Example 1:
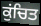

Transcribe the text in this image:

ਕੁਂਚਿਤ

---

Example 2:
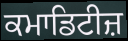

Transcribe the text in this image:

ਕਮਾਡਿਟੀਜ਼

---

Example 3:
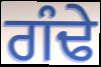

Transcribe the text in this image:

ਗੰਢੇ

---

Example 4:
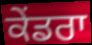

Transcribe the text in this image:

ਕੇਂਡਰਾ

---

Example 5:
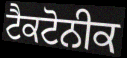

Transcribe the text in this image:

ਟੈਕਟੋਨੀਕ